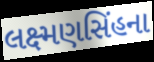
લક્ષ્મણસિંહના